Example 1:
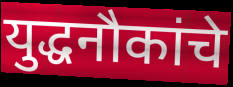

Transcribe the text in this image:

युद्धनौकांचे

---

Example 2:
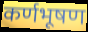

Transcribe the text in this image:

कर्णभूषण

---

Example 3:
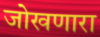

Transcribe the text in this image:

जोखणारा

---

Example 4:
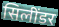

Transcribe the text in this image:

सिलींडर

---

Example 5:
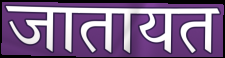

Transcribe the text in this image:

जातायत